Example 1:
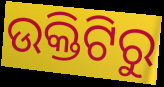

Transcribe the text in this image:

ଉକ୍ତିଟିରୁ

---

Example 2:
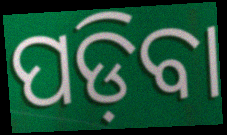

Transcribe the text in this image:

ପଡ଼ିବା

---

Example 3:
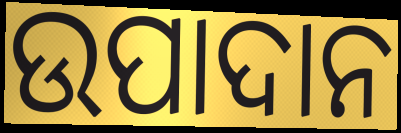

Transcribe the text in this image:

ଉପାଦାନ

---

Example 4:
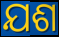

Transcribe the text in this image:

ଯଶ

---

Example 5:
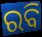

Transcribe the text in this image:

ରବି